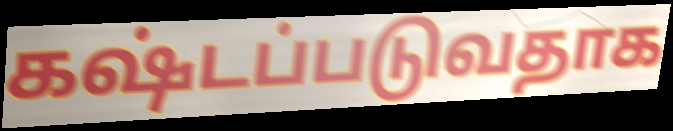
கஷ்டப்படுவதாக